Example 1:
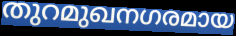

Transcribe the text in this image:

തുറമുഖനഗരമായ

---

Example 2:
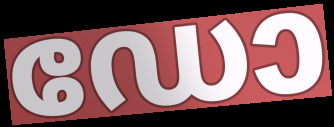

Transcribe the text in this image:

ഡോ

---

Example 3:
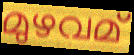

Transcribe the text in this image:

മുഴവമ്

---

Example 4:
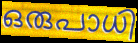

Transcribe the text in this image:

ഒരുപാധി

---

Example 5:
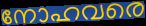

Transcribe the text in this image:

നോഹവരെ